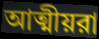
আত্মীয়রা